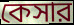
কেসার